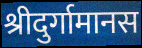
श्रीदुर्गामानस